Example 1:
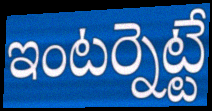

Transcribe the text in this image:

ఇంటర్నెట్టే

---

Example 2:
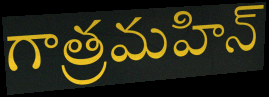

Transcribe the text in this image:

గాత్రమహిన్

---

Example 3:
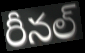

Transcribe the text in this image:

రీనల్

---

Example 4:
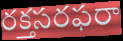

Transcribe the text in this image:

రక్తసరఫరా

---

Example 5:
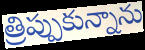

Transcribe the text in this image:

త్రిప్పుకున్నాను